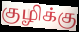
குழிக்கு